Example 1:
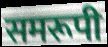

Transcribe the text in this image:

समरूपी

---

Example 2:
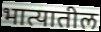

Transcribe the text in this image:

भात्यातील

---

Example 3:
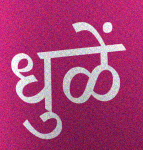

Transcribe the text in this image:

धुळें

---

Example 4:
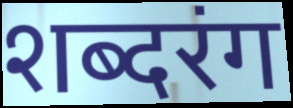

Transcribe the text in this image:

शब्दरंग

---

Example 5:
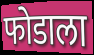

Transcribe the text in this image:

फोडाला